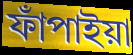
ফাঁপাইয়া